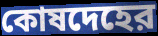
কোষদেহের